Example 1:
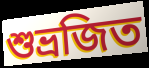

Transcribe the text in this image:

শুভ্রজিত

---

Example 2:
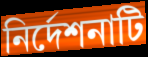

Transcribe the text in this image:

নির্দেশনাটি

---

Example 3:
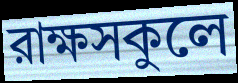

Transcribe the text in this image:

রাক্ষসকুলে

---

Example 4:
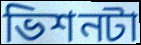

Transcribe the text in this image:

ভিশনটা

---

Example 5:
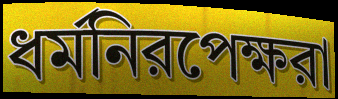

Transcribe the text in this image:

ধর্মনিরপেক্ষরা